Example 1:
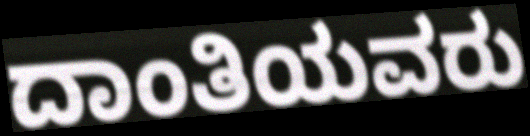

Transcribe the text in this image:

ದಾಂತಿಯವರು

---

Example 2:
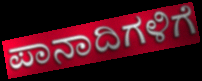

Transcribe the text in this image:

ಪಾನಾದಿಗಳಿಗೆ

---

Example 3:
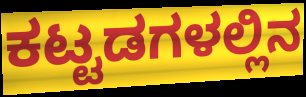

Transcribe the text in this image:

ಕಟ್ಟಡಗಳಲ್ಲಿನ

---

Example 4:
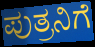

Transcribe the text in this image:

ಪುತ್ರನಿಗೆ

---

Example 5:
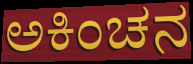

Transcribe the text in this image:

ಅಕಿಂಚನ